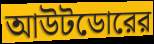
আউটডোরের